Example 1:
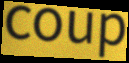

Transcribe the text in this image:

coup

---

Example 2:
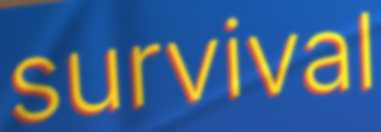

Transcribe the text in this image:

survival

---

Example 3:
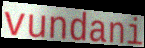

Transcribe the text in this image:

vundani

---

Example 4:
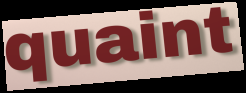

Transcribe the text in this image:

quaint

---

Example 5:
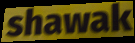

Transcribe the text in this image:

shawak